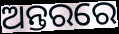
ଅନ୍ତରରେ